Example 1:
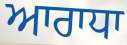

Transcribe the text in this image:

ਆਰਾਧਾ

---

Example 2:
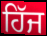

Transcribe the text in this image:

ਹਿੱਜ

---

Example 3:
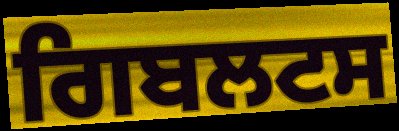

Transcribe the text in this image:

ਗਿਬਲਟਸ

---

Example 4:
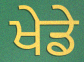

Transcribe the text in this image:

ਖੇਡੇ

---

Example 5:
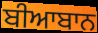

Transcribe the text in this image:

ਬੀਆਬਾਨ